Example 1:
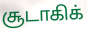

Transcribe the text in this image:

சூடாகிக்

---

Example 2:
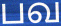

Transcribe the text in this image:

பவ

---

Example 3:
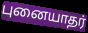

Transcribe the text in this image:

புனையாதர்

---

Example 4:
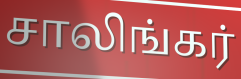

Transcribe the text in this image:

சாலிங்கர்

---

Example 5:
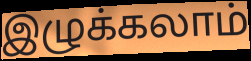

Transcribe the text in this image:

இழுக்கலாம்